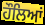
ਹੌਲਿਆਂ